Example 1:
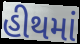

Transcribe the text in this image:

હીથમાં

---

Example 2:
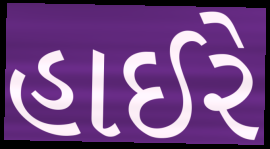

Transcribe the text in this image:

હાઈરે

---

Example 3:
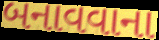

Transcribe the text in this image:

બનાવવાના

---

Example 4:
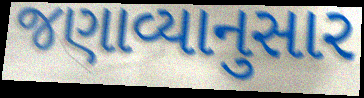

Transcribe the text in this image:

જણાવ્યાનુસાર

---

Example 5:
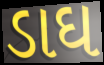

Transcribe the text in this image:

ડાઘ